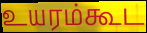
உயரம்கூட